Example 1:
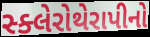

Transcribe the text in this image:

સ્ક્લેરોથેરાપીનો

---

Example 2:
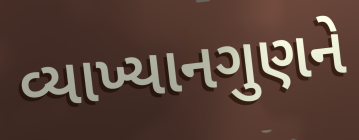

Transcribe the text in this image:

વ્યાખ્યાનગુણને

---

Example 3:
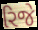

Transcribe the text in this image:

રિજે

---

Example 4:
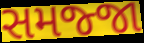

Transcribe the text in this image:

સમજ્જા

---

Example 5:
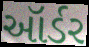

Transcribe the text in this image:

ઑર્ડર